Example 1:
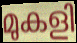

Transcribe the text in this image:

മുകളി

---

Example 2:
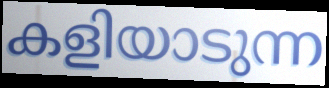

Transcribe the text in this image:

കളിയാടുന്ന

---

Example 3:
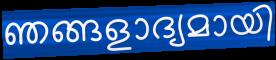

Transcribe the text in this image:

ഞങ്ങളാദ്യമായി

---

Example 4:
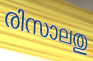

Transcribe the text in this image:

രിസാലതു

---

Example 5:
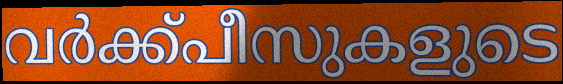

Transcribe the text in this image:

വർക്ക്പീസുകളുടെ